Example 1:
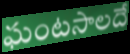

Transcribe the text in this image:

ఘంటసాలదే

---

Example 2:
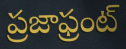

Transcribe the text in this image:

ప్రజాఫ్రంట్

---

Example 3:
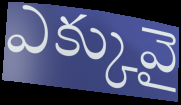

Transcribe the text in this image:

ఎక్కువై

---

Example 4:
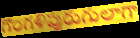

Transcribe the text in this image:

గొంగళిపురుగులాగా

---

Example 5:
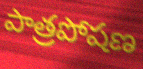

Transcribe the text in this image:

పాత్రపోషణ